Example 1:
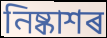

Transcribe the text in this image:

নিষ্কাশৰ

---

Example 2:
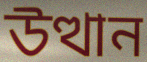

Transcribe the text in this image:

উত্থান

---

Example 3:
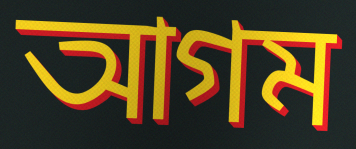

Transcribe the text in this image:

আগম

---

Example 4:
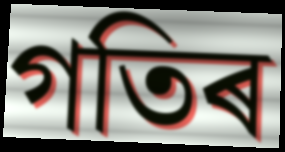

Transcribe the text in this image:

গতিৰ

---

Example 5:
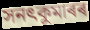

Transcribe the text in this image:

সনৎকুমাৰৰ